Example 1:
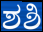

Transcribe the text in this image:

ಶಶಿ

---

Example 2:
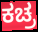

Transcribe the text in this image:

ಕಚ್ರ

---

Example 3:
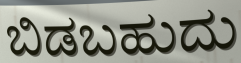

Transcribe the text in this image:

ಬಿಡಬಹುದು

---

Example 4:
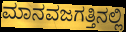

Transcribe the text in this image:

ಮಾನವಜಗತ್ತಿನಲ್ಲಿ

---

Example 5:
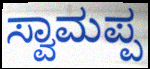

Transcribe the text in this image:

ಸ್ವಾಮಪ್ಪ